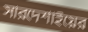
সারদেশাইয়ের